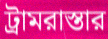
ট্রামরাস্তার